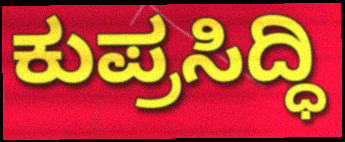
ಕುಪ್ರಸಿದ್ಧಿ